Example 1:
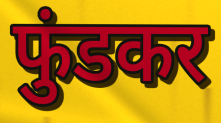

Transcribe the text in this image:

फुंडकर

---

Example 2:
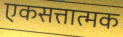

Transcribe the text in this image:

एकसत्तात्मक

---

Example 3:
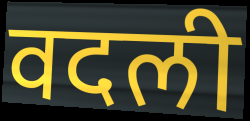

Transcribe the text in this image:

वदली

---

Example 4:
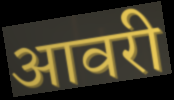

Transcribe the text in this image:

आवरी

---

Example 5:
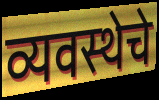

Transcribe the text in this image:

व्यवस्थेचे